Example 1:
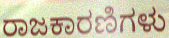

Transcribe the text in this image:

ರಾಜಕಾರಣಿಗಳು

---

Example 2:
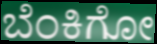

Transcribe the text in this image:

ಬೆಂಕಿಗೋ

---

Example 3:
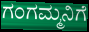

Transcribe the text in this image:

ಗಂಗಮ್ಮನಿಗೆ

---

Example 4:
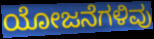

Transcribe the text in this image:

ಯೋಜನೆಗಳಿವು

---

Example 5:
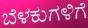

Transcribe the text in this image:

ಬೆಳಕುಗಳಿಗೆ